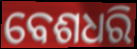
ବେଶଧରି